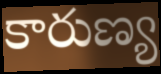
కారుణ్య